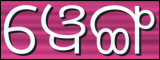
ୱେଙ୍ଗ